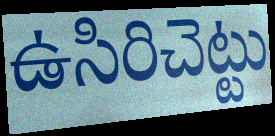
ఉసిరిచెట్టు